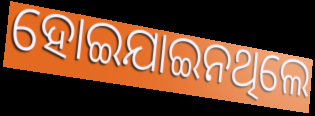
ହୋଇଯାଇନଥିଲେ